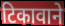
टिकावाने